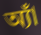
অ্যাঁ